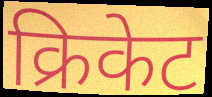
क्रिकेट